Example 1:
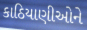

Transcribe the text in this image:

કાઠિયાણીઓને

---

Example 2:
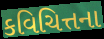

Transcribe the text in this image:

કવિચિત્તના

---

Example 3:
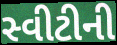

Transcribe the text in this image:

સ્વીટીની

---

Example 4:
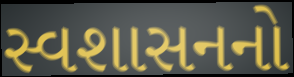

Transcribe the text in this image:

સ્વશાસનનો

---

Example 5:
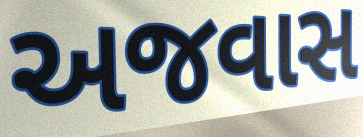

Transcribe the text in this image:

અજવાસ